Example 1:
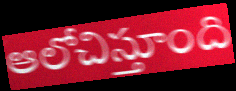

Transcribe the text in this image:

ఆలోచిస్తూంది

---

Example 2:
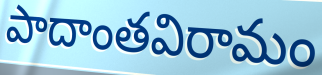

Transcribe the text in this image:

పాదాంతవిరామం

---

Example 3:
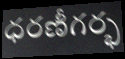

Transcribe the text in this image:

ధరణీగర్భ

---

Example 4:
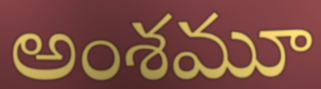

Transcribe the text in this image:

అంశమూ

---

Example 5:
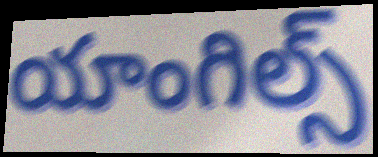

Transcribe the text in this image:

యాంగిల్స్